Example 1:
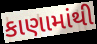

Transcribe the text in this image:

કાણામાંથી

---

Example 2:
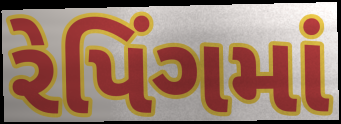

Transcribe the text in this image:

રેપિંગમાં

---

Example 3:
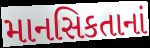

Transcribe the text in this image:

માનસિકતાનાં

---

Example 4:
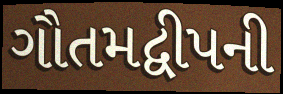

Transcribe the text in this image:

ગૌતમદ્વીપની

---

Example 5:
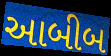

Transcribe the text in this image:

આબીબ